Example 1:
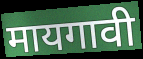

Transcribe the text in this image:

मायगावी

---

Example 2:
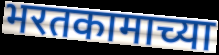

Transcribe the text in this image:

भरतकामाच्या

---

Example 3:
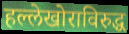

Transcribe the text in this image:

हल्लेखोराविरुद्ध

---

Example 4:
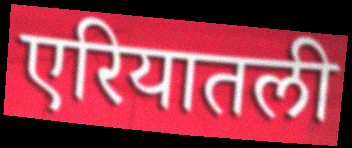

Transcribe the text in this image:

एरियातली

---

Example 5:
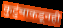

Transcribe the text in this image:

कुटुंबाकडूनही